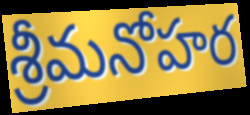
శ్రీమనోహర